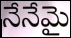
నేనేమై